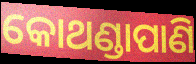
କୋଥଣ୍ଡାପାଣି